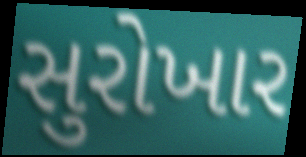
સુરોખાર